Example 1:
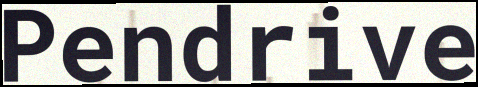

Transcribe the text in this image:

Pendrive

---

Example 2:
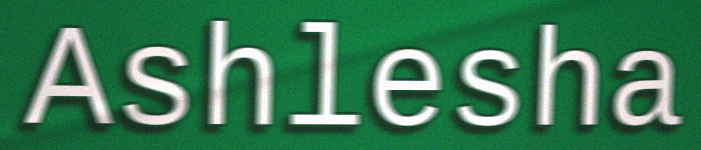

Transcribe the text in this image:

Ashlesha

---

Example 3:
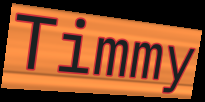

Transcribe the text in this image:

Timmy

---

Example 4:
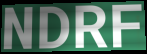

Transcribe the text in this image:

NDRF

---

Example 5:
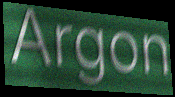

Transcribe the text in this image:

Argon